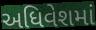
અધિવેશમાં